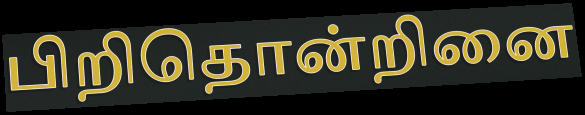
பிறிதொன்றினை